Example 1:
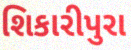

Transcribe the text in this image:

શિકારીપુરા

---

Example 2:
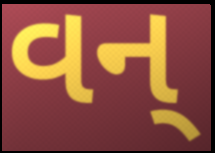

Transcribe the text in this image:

વન્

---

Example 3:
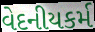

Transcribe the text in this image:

વેદનીયકર્મ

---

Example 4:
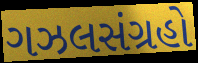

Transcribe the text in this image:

ગઝલસંગ્રહો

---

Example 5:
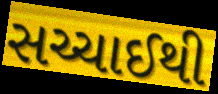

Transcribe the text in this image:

સચ્ચાઈથી